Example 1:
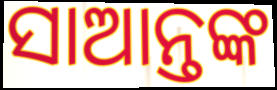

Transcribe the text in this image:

ସାଆନ୍ତଙ୍କ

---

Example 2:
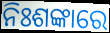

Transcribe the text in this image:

ନିଃଶଙ୍କାରେ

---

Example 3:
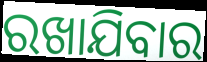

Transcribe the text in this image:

ରଖାଯିବାର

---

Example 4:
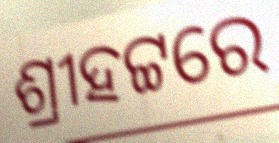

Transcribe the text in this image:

ଶ୍ରୀହଟ୍ଟରେ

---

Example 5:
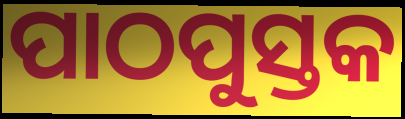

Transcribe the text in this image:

ପାଠପୁସ୍ତକ